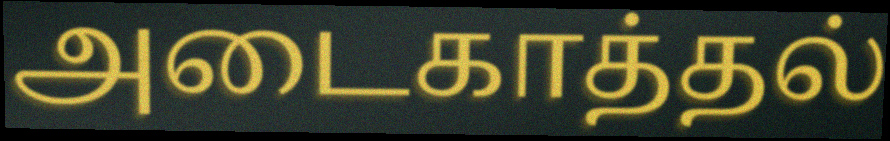
அடைகாத்தல்